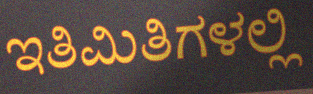
ಇತಿಮಿತಿಗಳಲ್ಲಿ